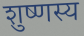
शुष्णस्य